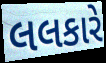
લલકારે